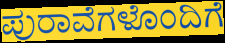
ಪುರಾವೆಗಳೊಂದಿಗೆ